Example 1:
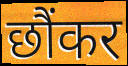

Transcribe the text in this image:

छौंकर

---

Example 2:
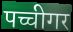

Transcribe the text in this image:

पच्चीगर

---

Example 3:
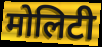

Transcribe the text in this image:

मोलिटी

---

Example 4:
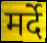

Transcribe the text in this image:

मर्दे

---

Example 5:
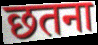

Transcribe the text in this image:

छतना